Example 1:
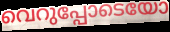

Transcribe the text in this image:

വെറുപ്പോടെയോ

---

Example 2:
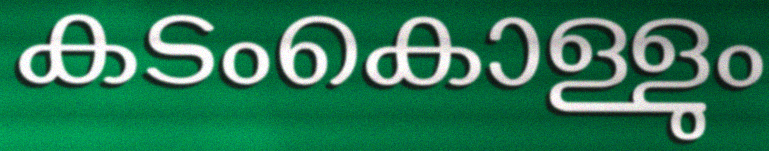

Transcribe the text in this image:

കടംകൊള്ളും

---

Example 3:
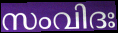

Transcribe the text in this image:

സംവിദഃ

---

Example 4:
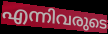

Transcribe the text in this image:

എന്നിവരുടെ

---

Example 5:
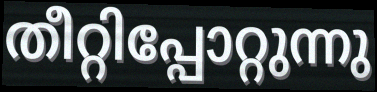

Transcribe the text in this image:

തീറ്റിപ്പോറ്റുന്നു